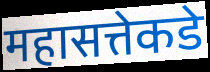
महासत्तेकडे